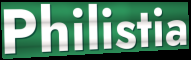
Philistia